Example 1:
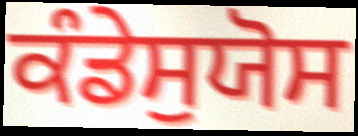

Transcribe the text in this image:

ਕੰਡੇਸੁਯੋਸ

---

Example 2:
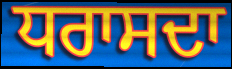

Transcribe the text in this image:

ਧਰਾਸਦਾ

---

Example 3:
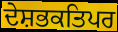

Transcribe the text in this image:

ਦੇਸ਼ਭਕਤਿਪਰ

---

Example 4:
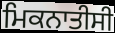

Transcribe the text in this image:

ਮਿਕਨਾਤੀਸੀ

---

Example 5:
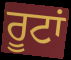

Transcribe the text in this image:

ਰੂਟਾਂ